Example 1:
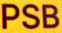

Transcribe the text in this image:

PSB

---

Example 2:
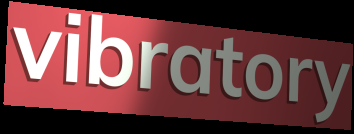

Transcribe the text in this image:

vibratory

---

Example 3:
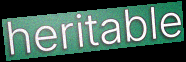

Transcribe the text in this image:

heritable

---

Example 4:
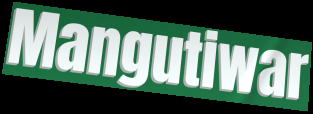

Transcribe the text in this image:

Mangutiwar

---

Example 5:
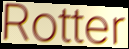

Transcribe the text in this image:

Rotter